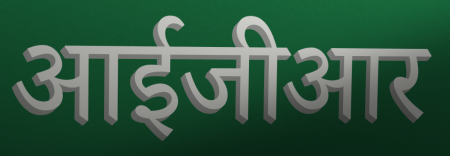
आईजीआर